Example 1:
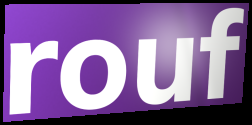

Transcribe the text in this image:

rouf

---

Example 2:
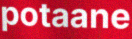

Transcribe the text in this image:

potaane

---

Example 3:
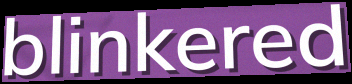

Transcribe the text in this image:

blinkered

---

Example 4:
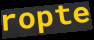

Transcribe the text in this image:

ropte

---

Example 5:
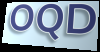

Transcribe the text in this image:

OQD